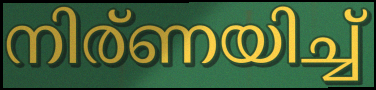
നിര്ണയിച്ച്